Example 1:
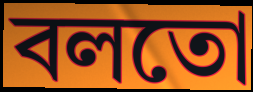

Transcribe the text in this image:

বলতো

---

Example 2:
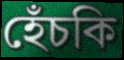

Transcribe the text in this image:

হেঁচকি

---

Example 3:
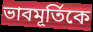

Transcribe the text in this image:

ভাবমূর্তিকে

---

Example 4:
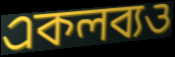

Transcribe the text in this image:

একলব্যও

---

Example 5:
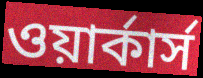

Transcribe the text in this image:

ওয়ার্কার্স